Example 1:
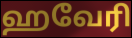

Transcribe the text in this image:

ஹவேரி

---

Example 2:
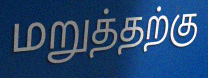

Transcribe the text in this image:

மறுத்தற்கு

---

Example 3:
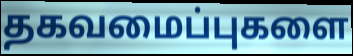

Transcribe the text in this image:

தகவமைப்புகளை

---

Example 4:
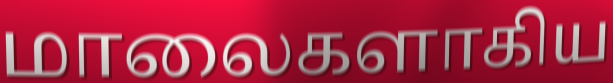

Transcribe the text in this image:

மாலைகளாகிய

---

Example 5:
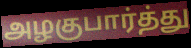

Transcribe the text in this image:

அழகுபார்த்து